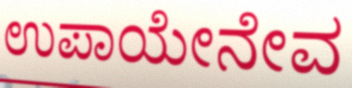
ಉಪಾಯೇನೇವ